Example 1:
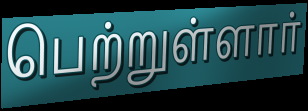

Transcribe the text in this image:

பெற்றுள்ளார்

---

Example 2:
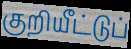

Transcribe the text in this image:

குறியீட்டுப்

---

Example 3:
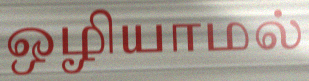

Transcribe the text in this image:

ஒழியாமல்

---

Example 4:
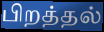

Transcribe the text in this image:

பிறத்தல்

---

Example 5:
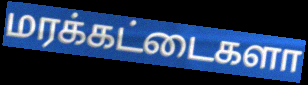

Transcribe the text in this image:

மரக்கட்டைகளா